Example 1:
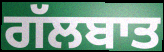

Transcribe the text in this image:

ਗੱਲਬਾਤ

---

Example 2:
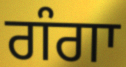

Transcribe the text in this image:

ਗੰਗਾ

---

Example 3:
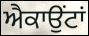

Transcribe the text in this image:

ਐਕਾਉਂਟਾਂ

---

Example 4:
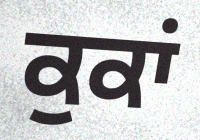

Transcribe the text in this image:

ਕੁਕਾਂ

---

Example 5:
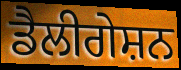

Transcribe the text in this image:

ਡੈਲੀਗੇਸ਼ਨ